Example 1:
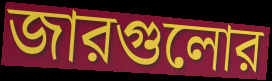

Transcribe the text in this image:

জারগুলোর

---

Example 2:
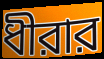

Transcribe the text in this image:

ধীরার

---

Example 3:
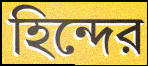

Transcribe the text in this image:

হিন্দের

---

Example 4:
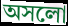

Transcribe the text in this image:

অসলো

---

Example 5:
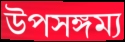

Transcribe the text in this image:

উপসঙ্গম্য